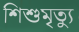
শিশুমৃত্যু